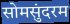
सोमसुंदरम